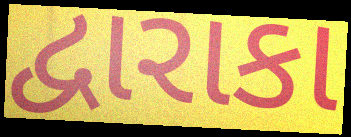
દ્વારાકા